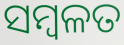
ସମ୍ବଳତ